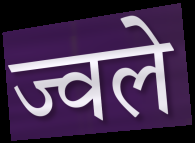
ज्वले